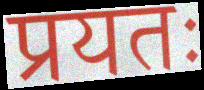
प्रयतः